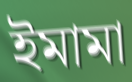
ইমামা